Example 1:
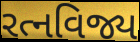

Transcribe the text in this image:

રત્નવિજ્ય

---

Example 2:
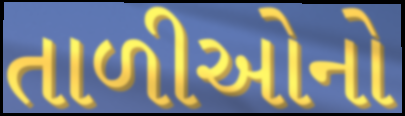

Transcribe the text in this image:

તાળીઓનો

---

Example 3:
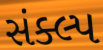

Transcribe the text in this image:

સંક્લ્પ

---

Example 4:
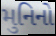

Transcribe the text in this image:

મુનિનો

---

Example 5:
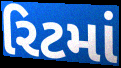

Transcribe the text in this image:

રિટમાં